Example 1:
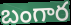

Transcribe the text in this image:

బంగార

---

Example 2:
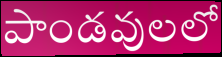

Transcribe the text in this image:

పాండవులలో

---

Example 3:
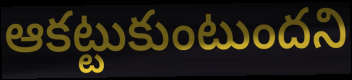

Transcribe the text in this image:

ఆకట్టుకుంటుందని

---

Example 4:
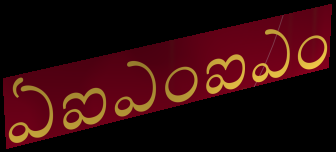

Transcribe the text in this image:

ఏఐఎంఐఎం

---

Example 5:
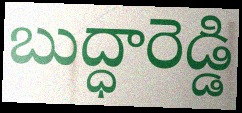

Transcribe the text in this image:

బుద్ధారెడ్డి